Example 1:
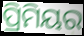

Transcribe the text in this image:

ପ୍ରିମିୟର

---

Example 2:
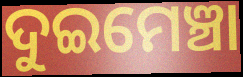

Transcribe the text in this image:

ଦୁଇମେଞ୍ଚା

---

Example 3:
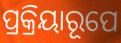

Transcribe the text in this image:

ପ୍ରକ୍ରିୟାରୂପେ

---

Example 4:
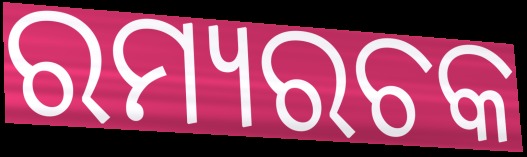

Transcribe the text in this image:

ରମ୍ୟରଚକ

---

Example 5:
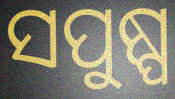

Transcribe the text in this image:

ସପୁଷ୍ପ